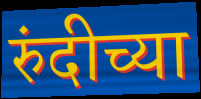
रुंदीच्या